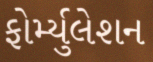
ફોર્મ્યુલેશન